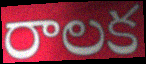
రాలక